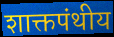
शाक्तपंथीय